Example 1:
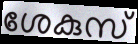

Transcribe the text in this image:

ശേകുസ്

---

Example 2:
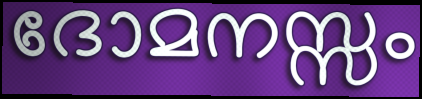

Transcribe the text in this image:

ദോമനസ്സം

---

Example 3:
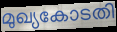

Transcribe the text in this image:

മുഖ്യകോടതി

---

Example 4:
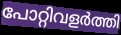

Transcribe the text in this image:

പോറ്റിവളർത്തി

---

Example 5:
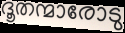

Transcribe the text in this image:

ദൂതന്മാരോടു